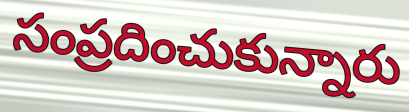
సంప్రదించుకున్నారు